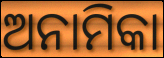
ଅନାମିକା